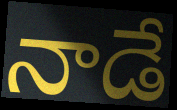
నాడే